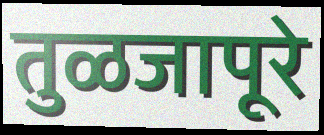
तुळजापूरे